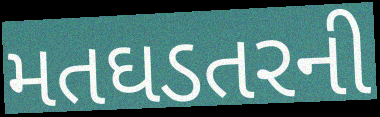
મતઘડતરની